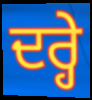
ਦਰ੍ਹੇ